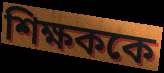
শিক্ষককে